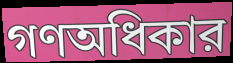
গণঅধিকার